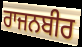
ਰਾਜਨਬੀਰ